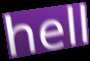
hell